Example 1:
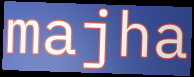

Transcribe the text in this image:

majha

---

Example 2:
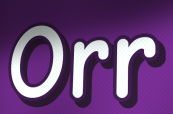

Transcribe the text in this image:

Orr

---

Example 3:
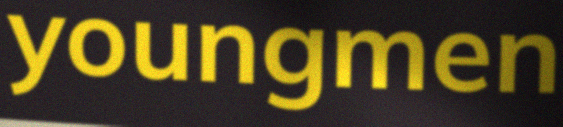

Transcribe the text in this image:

youngmen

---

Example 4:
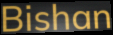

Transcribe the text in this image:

Bishan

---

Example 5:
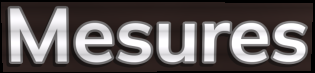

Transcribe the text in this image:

Mesures